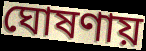
ঘোষণায়